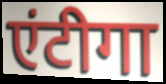
एंटीगा